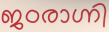
ജഠരാഗ്നി